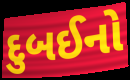
દુબઈનો